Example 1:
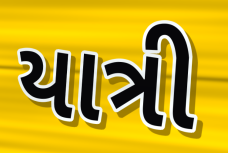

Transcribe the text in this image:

યાત્રી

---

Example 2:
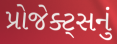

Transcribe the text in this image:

પ્રોજેક્ટ્સનું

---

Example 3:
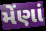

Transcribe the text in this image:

મેંણાં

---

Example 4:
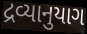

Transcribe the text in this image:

દ્રવ્યાનુયાગ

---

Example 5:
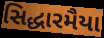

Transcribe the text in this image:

સિદ્ધારમૈયા